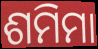
ଶମିମା